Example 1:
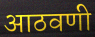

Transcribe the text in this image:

आठवणी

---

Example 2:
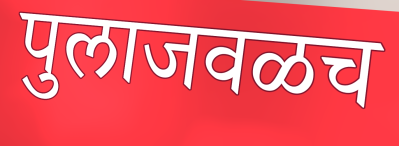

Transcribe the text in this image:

पुलाजवळच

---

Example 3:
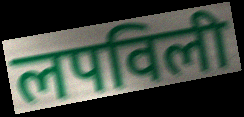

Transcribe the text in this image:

लपविली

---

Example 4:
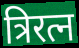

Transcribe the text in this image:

त्रिरत्न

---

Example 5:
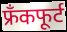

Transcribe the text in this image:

फ्रँकफूर्ट